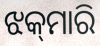
ଝକ୍‌ମାରି